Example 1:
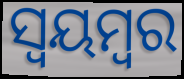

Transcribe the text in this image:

ସ୍ଵୟମ୍ବର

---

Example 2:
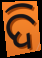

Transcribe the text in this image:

ଦି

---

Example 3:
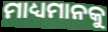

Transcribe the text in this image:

ମାଧ୍ୟମାନକୁ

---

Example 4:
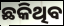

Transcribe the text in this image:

ଛକିଥିବ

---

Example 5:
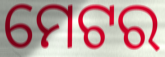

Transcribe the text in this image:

ମେଟର